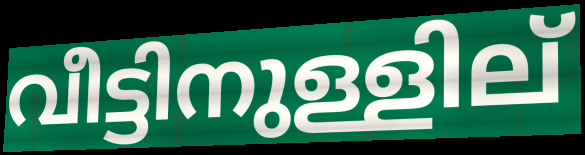
വീട്ടിനുള്ളില്